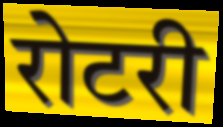
रोटरी